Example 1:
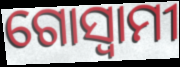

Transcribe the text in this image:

ଗୋସ୍ୱାମୀ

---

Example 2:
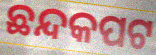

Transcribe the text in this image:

ଛନ୍ଦକପଟ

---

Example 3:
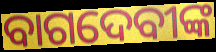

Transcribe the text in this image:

ବାଗଦେବୀଙ୍କ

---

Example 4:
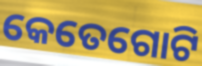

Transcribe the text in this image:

କେତେଗୋଟି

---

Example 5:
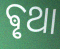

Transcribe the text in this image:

ଵୃଥା